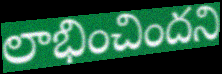
లాభించిందని